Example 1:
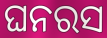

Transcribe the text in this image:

ଘନରସ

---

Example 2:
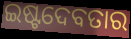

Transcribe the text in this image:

ଇଷ୍ଟଦେବତାର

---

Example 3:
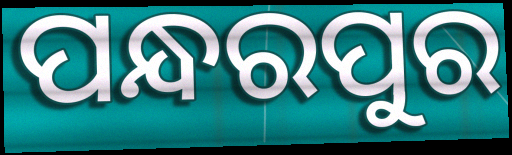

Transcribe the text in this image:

ପନ୍ଧରପୁର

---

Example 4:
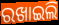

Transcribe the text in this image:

ରଖାଇଲି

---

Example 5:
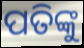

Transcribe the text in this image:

ପତିଙ୍କୁ